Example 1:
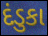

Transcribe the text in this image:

દંડુકા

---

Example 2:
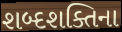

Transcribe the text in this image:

શબ્દશક્તિના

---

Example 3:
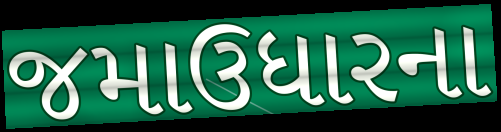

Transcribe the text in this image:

જમાઉધારના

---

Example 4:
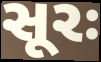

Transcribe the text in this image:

સૂરઃ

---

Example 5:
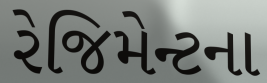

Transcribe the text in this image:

રેજિમેન્ટના